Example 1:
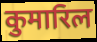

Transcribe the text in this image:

कुमारिल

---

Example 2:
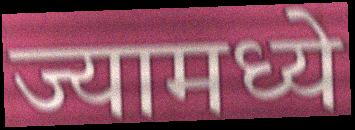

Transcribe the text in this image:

ज्यामध्ये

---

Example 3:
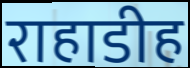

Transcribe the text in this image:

राहाडीह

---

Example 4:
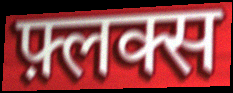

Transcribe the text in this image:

फ़्लक्स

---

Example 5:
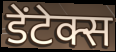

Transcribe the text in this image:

डेंटेक्स